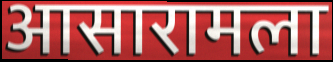
आसारामला